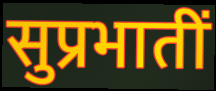
सुप्रभातीं